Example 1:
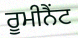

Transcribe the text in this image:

ਰੂਮੀਨੈਂਟ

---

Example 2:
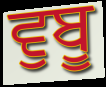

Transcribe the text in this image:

ਵੁਬੂ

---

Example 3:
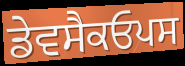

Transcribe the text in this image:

ਡੇਵਸੈਕਓਪਸ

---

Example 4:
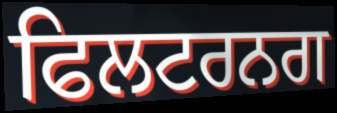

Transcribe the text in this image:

ਫਿਲਟਰਨਗ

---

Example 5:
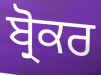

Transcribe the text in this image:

ਬ੍ਰੋਕਰ